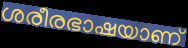
ശരീരഭാഷയാണ്